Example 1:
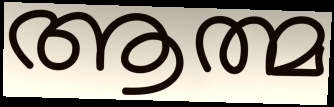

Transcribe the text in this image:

ആത്മ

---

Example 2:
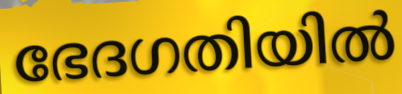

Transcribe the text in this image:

ഭേദഗതിയിൽ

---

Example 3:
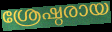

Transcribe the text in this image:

ശ്രേഷ്ഠരായ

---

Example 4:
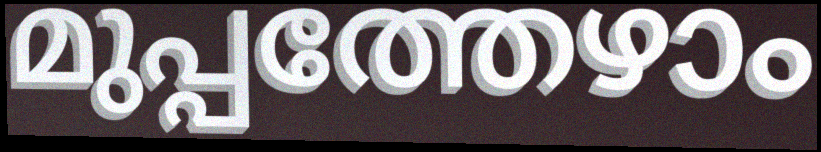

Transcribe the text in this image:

മുപ്പത്തേഴാം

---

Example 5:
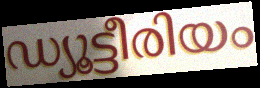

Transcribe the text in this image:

ഡ്യൂട്ടീരിയം